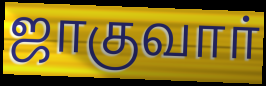
ஜாகுவார்